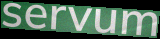
servum